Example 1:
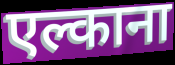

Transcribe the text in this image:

एल्काना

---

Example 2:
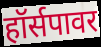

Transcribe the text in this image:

हॉर्सपावर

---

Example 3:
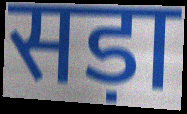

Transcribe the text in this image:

सड़ा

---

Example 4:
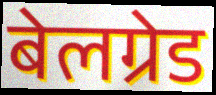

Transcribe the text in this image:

बेलग्रेड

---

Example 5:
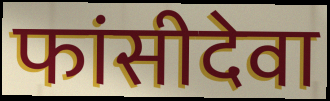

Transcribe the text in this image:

फांसीदेवा